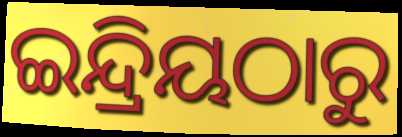
ଇନ୍ଦ୍ରିୟଠାରୁ